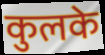
कुलके